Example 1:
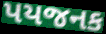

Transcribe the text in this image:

પયજનક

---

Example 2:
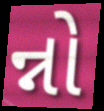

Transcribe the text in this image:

ન્નો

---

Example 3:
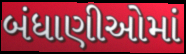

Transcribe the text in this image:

બંધાણીઓમાં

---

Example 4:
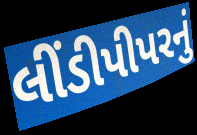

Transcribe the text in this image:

લીંડીપીપરનું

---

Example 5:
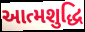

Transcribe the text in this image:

આત્મશુદ્ધિ